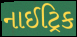
નાઈટ્રિક